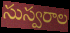
సుస్వరాల